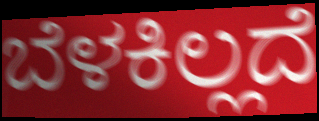
ಬೆಳಕಿಲ್ಲದೆ